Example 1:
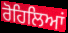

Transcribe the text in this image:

ਰੋਹਿਲਿਆਂ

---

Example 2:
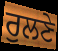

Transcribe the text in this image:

ਰੁਲਣੇ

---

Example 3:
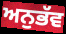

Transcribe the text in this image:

ਅਨੁਭੱਵ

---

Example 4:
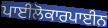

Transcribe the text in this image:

ਪਾਈਲੋਕਾਰਪਾਈਨ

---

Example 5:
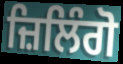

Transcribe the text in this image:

ਜ਼ਿਲਿੰਗੋ